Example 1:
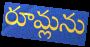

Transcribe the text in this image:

రూమ్లను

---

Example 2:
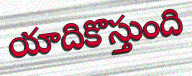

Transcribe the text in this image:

యాదికొస్తుంది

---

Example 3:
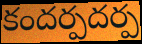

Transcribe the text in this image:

కందర్పదర్ప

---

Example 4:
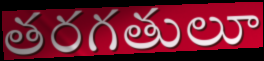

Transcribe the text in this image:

తరగతులూ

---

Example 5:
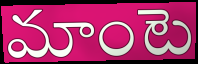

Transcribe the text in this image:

మాంటె